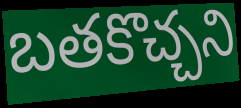
బతకొచ్చని